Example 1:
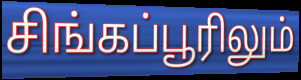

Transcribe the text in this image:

சிங்கப்பூரிலும்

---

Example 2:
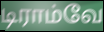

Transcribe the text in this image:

டிராம்வே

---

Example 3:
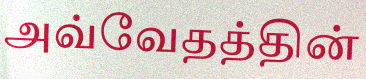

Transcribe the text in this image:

அவ்வேதத்தின்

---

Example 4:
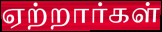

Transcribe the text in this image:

ஏற்றார்கள்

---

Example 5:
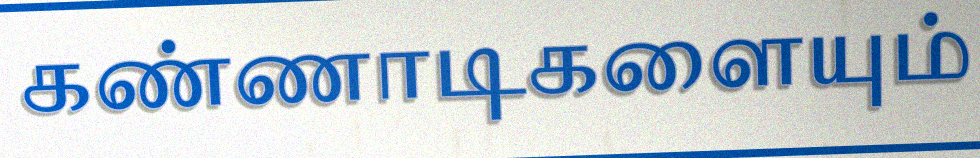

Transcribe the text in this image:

கண்ணாடிகளையும்